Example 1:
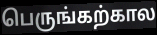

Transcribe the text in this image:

பெருங்கற்கால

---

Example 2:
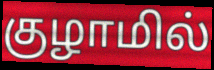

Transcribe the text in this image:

குழாமில்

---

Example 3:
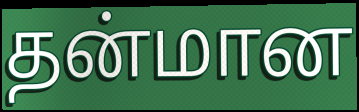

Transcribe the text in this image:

தன்மான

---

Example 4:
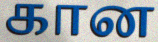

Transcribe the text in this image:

கான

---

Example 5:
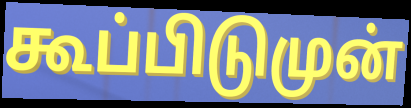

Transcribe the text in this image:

கூப்பிடுமுன்